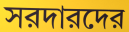
সরদারদের